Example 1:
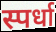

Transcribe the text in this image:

स्पर्धा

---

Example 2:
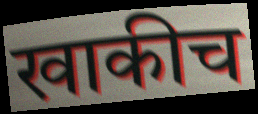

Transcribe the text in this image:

खाकीच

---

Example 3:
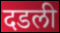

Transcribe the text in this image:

दडली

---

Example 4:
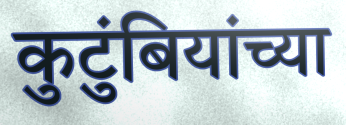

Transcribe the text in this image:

कुटुंबियांच्या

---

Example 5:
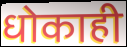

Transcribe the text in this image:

धोकाही